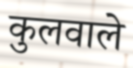
कुलवाले